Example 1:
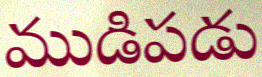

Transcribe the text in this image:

ముడిపడు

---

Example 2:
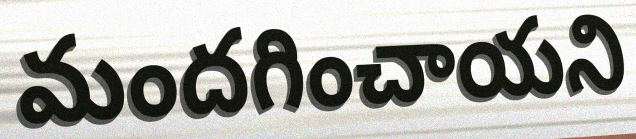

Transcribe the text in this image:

మందగించాయని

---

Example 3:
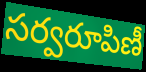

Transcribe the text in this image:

సర్వరూపిణీ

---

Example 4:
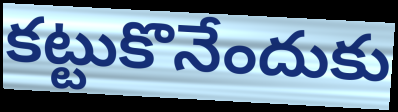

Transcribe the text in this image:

కట్టుకొనేందుకు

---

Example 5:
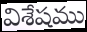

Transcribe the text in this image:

విశేషము